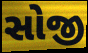
સોજી